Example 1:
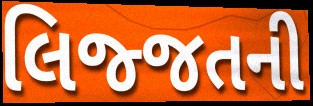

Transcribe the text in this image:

લિજ્જતની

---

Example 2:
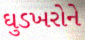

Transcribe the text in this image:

ઘુડખરોને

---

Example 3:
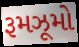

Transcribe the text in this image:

રૂમઝૂમો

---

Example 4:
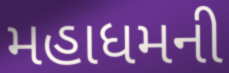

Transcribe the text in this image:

મહાધમની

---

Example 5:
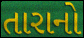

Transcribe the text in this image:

તારાનો